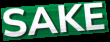
SAKE